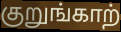
குறுங்காற்